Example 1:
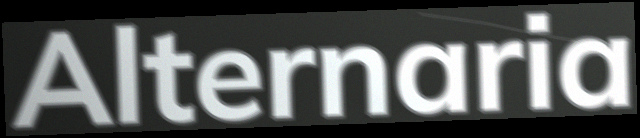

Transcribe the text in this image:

Alternaria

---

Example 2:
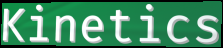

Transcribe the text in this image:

Kinetics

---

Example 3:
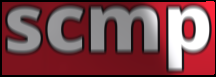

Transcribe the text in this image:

scmp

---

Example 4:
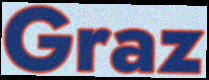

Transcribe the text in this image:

Graz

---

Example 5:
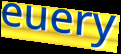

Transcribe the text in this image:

euery